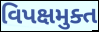
વિપક્ષમુક્ત